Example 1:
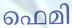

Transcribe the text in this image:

ഫെമി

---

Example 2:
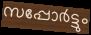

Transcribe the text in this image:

സപ്പോർട്ടും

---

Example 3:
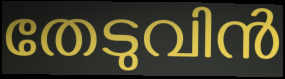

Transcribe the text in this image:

തേടുവിൻ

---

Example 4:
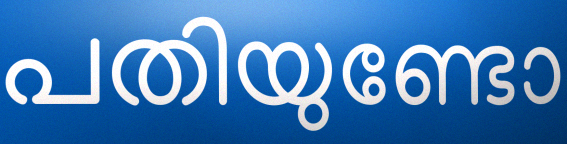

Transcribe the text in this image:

പതിയുണ്ടോ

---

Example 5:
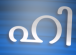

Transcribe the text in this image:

ഹി